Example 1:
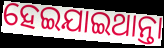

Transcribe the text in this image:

ହେଇଯାଇଥାନ୍ତା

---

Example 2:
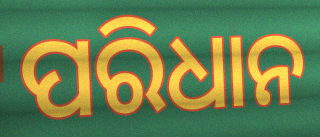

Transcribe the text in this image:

ପରିଧାନ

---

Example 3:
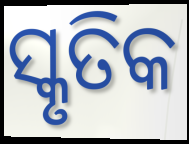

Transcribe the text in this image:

ସ୍କୃତିକ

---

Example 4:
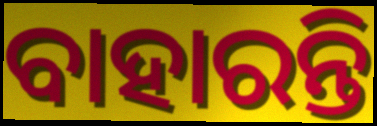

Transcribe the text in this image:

ବାହାରନ୍ତି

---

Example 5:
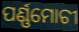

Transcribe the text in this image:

ପର୍ଣ୍ଣମୋଚୀ